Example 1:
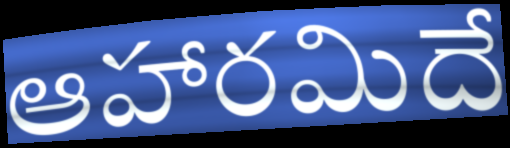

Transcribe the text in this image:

ఆహారమిదే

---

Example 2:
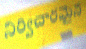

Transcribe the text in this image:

నిర్విచారమైన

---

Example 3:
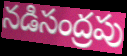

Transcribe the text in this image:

నడిసంద్రపు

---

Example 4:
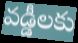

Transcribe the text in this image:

వడ్డీలకు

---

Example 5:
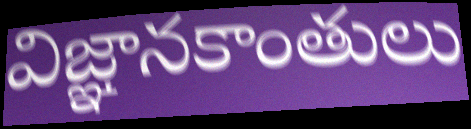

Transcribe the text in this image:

విజ్ఞానకాంతులు